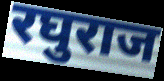
रघुराज